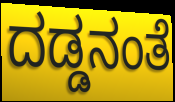
ದಡ್ಡನಂತೆ